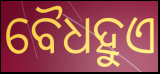
ବୈଧହୁଏ